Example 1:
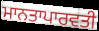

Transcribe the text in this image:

ਮਾਨਤਾਪਾਰਵਤੀ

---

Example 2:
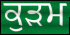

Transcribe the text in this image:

ਕੁੜਮ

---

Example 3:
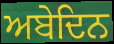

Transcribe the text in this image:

ਅਬੇਦਿਨ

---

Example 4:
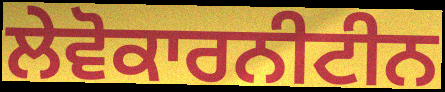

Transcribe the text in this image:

ਲੇਵੋਕਾਰਨੀਟੀਨ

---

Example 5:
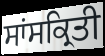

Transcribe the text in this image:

ਸਾਂਸਕ੍ਰਿਤੀ